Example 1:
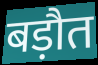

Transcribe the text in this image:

बड़ौत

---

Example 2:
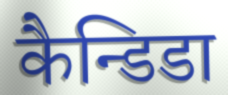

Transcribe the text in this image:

कैन्डिडा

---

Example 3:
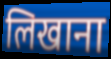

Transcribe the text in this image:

लिखाना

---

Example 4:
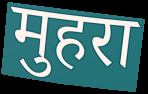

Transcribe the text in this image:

मुहरा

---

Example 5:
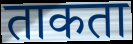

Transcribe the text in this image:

ताकता